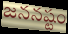
జననష్టం